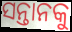
ସନ୍ତାନକୁ